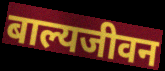
बाल्यजीवन